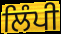
ਲਿੰਪੀ